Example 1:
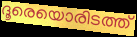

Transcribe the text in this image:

ദൂരെയൊരിടത്ത്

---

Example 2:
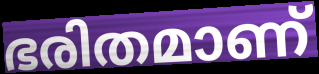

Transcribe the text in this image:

ഭരിതമാണ്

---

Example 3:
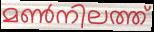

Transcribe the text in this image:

മൺനിലത്ത്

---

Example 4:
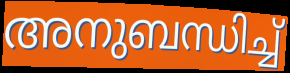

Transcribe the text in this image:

അനുബന്ധിച്ച്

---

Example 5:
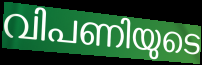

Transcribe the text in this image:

വിപണിയുടെ